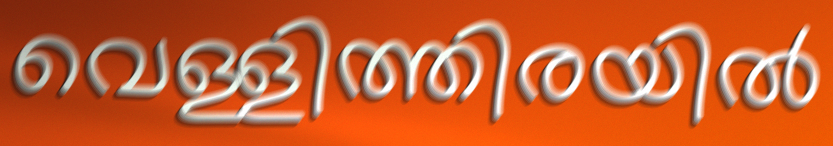
വെള്ളിത്തിരയിൽ